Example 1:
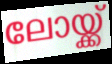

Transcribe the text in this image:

ലോയ്ക്ക്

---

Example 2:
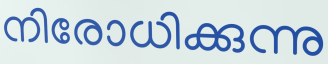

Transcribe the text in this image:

നിരോധിക്കുന്നു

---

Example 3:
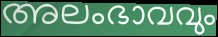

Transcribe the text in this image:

അലംഭാവവും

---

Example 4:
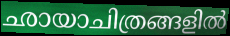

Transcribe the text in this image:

ഛായാചിത്രങ്ങളിൽ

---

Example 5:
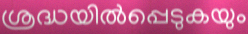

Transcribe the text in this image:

ശ്രദ്ധയിൽപ്പെടുകയും